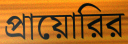
প্রায়োরির